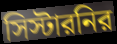
সিস্টারনির